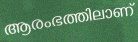
ആരംഭത്തിലാണ്